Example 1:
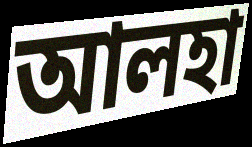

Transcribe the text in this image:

আলহা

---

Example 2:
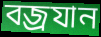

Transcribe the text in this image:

বজ্ৰযান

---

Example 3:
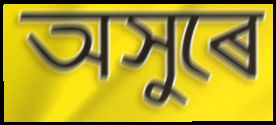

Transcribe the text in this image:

অসুৰে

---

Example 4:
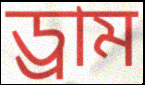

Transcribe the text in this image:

ড্ৰাম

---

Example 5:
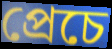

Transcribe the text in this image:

প্ৰেচে